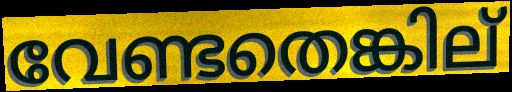
വേണ്ടതെങ്കില്